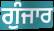
ਗੁੰਜਾਰ